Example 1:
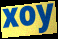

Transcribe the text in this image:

xoy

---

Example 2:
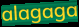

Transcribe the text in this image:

alagaga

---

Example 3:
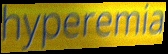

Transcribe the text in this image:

hyperemia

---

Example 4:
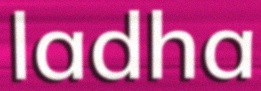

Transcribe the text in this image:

ladha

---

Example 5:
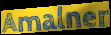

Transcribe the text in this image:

Amalner